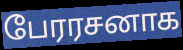
பேரரசனாக